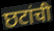
छटांची